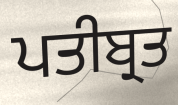
ਪਤੀਬ੍ਰਤ